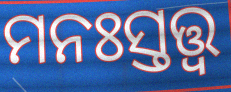
ମନଃସ୍ତତ୍ତ୍ଵ